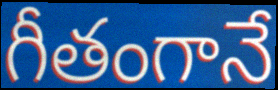
గీతంగానే